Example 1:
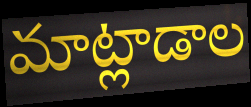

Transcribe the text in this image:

మాట్లాడాల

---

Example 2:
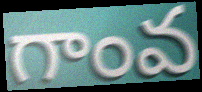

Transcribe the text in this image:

గాంవ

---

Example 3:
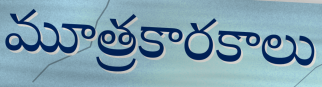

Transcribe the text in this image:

మూత్రకారకాలు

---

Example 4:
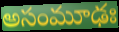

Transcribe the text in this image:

అసంమూఢః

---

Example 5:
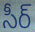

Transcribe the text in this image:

సీర్